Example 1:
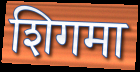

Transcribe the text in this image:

शिगमा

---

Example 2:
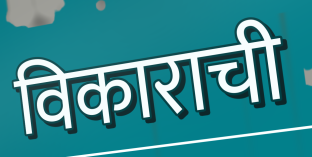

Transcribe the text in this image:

विकाराची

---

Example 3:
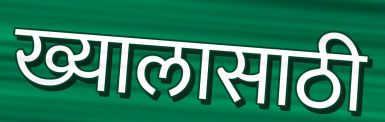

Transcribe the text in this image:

ख्यालासाठी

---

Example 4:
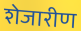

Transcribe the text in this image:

शेजारीण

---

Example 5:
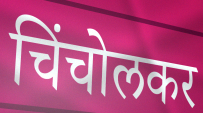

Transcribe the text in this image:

चिंचोलकर